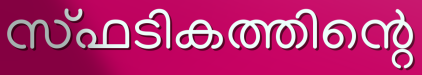
സ്ഫടികത്തിന്റെ